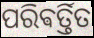
ପରିଵର୍ତ୍ତିତ